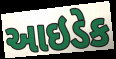
આઇડેક